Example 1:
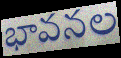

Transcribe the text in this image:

భావనల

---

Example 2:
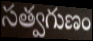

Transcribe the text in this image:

సత్వగుణం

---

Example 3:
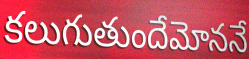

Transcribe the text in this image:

కలుగుతుందేమోననే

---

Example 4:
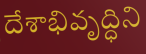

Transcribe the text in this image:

దేశాభివృద్ధిని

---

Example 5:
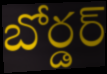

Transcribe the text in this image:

బోర్డర్